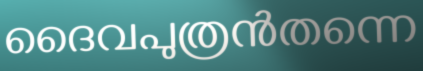
ദൈവപുത്രൻതന്നെ